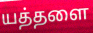
யத்தளை